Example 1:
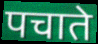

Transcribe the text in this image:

पचाते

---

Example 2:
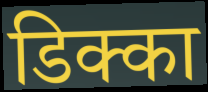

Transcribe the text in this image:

डिक्का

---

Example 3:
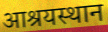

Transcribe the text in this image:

आश्रयस्थान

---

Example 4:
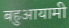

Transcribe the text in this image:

बहुआयामी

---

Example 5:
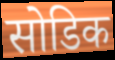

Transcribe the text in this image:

सोडिक